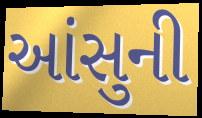
આંસુની